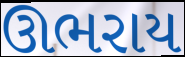
ઊભરાય